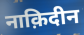
नाक़िदीन